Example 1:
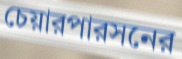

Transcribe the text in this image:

চেয়ারপারসনের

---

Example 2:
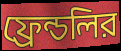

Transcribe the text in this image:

ফ্রেন্ডলির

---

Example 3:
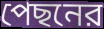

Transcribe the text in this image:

পেছনের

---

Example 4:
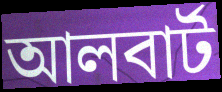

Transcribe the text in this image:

আলবার্ট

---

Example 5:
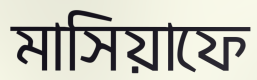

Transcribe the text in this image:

মাসিয়াফে